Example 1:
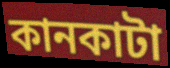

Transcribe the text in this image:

কানকাটা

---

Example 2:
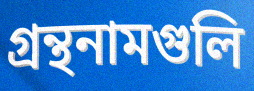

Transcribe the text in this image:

গ্রন্থনামগুলি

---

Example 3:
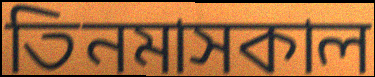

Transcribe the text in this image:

তিনমাসকাল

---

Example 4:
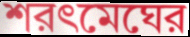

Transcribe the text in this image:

শরৎমেঘের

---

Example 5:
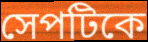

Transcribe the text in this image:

সেপটিকে